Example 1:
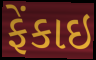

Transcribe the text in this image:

ફેંકાઇ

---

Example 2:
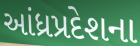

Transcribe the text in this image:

આંધ્રપ્રદેશના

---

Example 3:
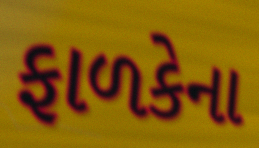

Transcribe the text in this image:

ફાળકેના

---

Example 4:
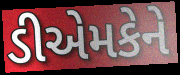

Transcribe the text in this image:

ડીએમકેને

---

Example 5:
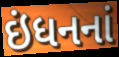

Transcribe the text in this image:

ઇંધનનાં